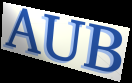
AUB